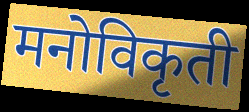
मनोविकृती